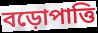
বড়োপাত্তি